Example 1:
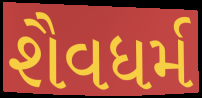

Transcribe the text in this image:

શૈવધર્મ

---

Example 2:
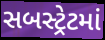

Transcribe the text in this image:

સબસ્ટ્રેટમાં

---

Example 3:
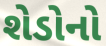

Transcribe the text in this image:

શેડોનો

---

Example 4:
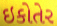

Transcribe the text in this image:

ઇકોતેર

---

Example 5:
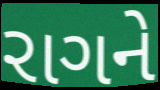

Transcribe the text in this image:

રાગને